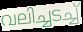
വലിച്ചടച്ച്